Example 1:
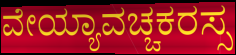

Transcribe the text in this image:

ವೇಯ್ಯಾವಚ್ಚಕರಸ್ಸ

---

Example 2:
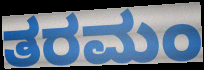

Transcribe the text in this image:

ತರಮಂ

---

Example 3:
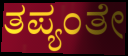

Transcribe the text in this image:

ತಪ್ಯಂತೇ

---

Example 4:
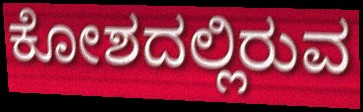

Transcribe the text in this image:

ಕೋಶದಲ್ಲಿರುವ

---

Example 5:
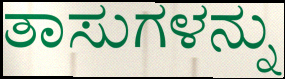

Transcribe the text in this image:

ತಾಸುಗಳನ್ನು